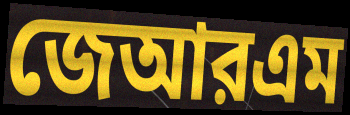
জেআরএম